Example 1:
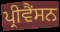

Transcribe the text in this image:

ਪ੍ਰੀਵੈਂਸਨ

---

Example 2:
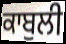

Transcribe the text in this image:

ਕਾਬੁਲੀ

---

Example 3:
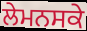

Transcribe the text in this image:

ਲੇਮਨਸਕੇ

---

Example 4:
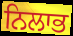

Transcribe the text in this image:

ਨਿਲਾਭ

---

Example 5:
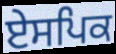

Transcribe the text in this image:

ਏਸਪਿਕ